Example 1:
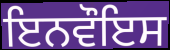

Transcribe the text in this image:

ਇਨਵੌਇਸ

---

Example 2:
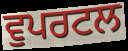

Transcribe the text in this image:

ਵੁਪਰਟਲ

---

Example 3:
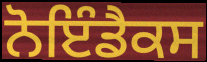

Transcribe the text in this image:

ਨੋਇੰਡੈਕਸ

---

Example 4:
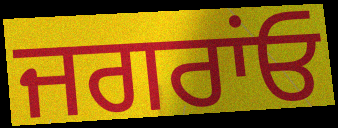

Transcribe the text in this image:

ਜਗਰਾਂਓ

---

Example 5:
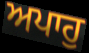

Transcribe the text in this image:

ਅਪਾਹੁ